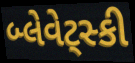
બ્લેવેટ્સ્કી